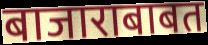
बाजाराबाबत